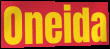
Oneida